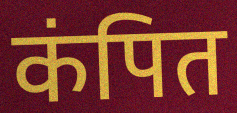
कंपित